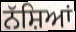
ਨੱਸ਼ਿਆਂ